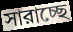
সারাচ্ছে